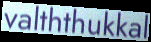
valththukkal